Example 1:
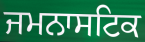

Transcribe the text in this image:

ਜਮਨਾਸਟਿਕ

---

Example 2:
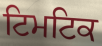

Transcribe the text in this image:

ਟਿਮਟਿਕ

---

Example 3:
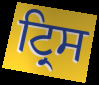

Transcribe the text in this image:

ਟ੍ਰਿਸ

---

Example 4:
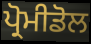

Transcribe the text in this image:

ਪ੍ਰੋਮੀਡੋਲ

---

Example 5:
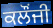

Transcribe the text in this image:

ਕਲੌਂਜੀ